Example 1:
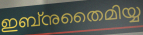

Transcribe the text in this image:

ഇബ്നുതൈമിയ്യ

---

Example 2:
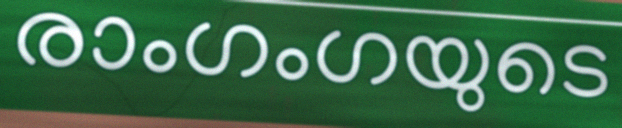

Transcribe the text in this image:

രാംഗംഗയുടെ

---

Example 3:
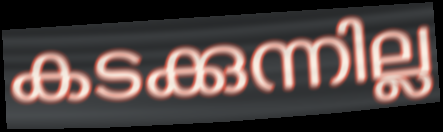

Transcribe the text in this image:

കടക്കുന്നില്ല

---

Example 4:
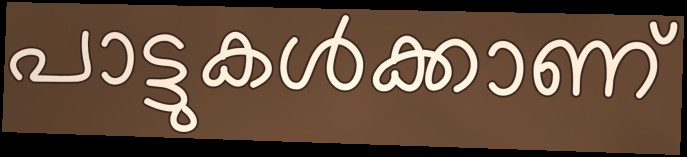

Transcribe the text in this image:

പാട്ടുകൾക്കാണ്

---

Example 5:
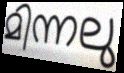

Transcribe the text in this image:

മിന്നലു